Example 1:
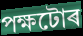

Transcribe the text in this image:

পক্ষটোৰ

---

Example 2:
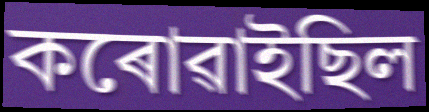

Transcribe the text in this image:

কৰোৱাইছিল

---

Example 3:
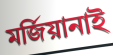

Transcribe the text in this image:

মৰ্জিয়ানাই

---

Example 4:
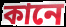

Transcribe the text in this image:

কানে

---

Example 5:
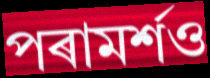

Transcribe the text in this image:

পৰামৰ্শও